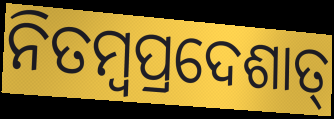
ନିତମ୍ବପ୍ରଦେଶାତ୍